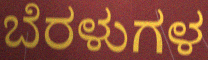
ಬೆರಳುಗಳ